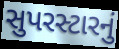
સુપરસ્ટારનું